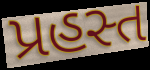
પ્રહસ્ત